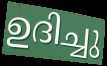
ഉദിച്ചു